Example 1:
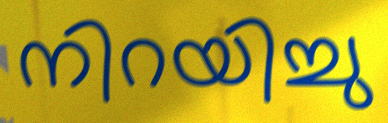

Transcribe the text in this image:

നിറയിച്ചു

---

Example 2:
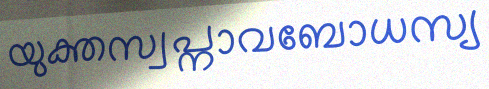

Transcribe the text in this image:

യുക്തസ്വപ്നാവബോധസ്യ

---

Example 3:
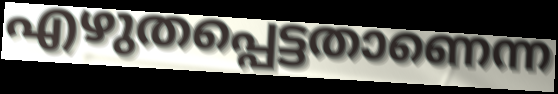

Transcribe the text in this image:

എഴുതപ്പെട്ടതാണെന്ന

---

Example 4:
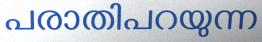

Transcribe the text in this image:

പരാതിപറയുന്ന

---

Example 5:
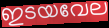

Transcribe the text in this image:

ഇടയവേല